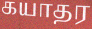
கயாதர